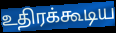
உதிரக்கூடிய